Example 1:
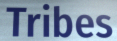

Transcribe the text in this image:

Tribes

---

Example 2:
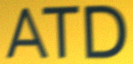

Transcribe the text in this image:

ATD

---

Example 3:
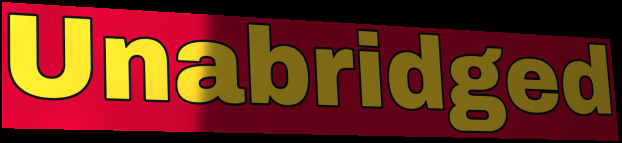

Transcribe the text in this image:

Unabridged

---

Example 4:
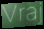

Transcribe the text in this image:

Vraj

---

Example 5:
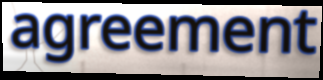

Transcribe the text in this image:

agreement